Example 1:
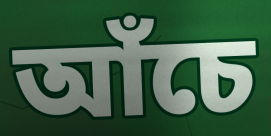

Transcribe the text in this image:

আঁচে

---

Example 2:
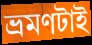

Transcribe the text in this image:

ভ্রমণটাই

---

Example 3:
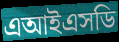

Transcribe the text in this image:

এআইএসডি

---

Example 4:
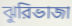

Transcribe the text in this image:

ঝুরিভাজা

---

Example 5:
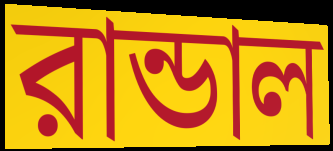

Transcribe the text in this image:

রান্ডাল